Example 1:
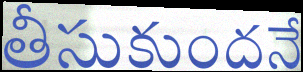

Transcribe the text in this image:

తీసుకుందనే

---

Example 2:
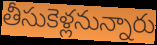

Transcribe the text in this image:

తీసుకెళ్లనున్నారు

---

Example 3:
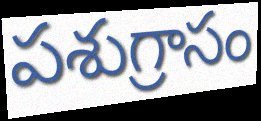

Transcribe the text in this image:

పశుగ్రాసం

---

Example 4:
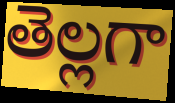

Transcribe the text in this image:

తెల్లగా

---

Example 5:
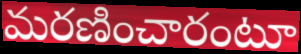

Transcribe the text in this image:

మరణించారంటూ